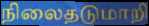
நிலைதடுமாறி